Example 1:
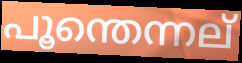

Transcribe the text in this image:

പൂന്തെന്നല്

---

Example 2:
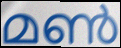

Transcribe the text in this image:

മൺ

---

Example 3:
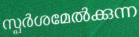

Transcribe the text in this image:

സ്പർശമേൽക്കുന്ന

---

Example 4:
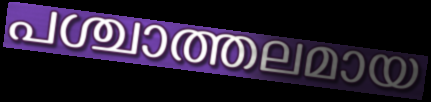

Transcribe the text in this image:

പശ്ചാത്തലമായ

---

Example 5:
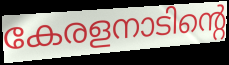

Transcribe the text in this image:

കേരളനാടിന്റെ